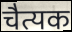
चैत्यक